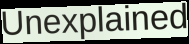
Unexplained